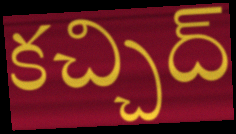
కచ్చిద్